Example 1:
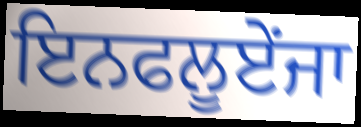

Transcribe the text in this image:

ਇਨਫਲੂਏਂਜਾ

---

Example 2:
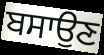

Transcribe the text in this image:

ਬਸਾਉਣ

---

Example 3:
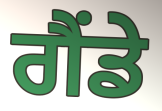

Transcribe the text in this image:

ਗੈਂਡੇ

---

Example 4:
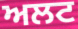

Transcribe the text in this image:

ਅਲਟ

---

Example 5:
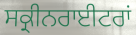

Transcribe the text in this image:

ਸਕ੍ਰੀਨਰਾਈਟਰਾਂ